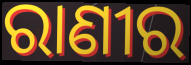
ରାଣୀର